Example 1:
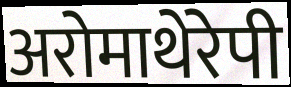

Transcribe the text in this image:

अरोमाथेरेपी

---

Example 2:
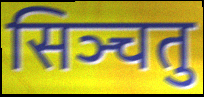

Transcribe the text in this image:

सिञ्चतु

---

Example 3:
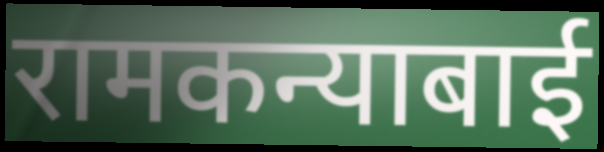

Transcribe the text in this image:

रामकन्याबाई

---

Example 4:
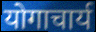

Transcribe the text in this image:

योगाचार्य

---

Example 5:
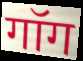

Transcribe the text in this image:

गॉग